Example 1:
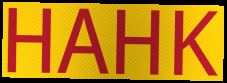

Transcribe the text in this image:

HAHK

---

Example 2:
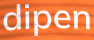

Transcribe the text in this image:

dipen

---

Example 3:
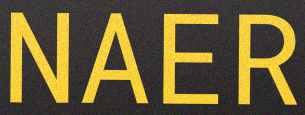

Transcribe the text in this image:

NAER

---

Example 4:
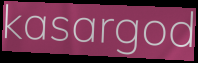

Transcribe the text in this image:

kasargod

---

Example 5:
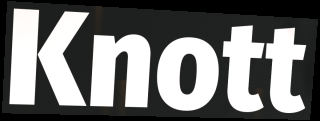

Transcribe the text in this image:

Knott